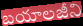
బయాలజీని